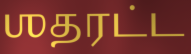
ஶதரட்ட